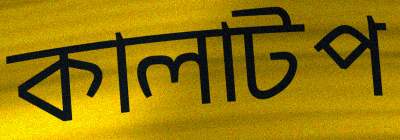
কালাটপ